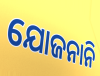
ଯୋଜନାନି